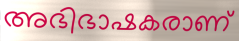
അഭിഭാഷകരാണ്